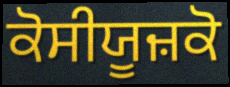
ਕੋਸੀਯੂਜ਼ਕੋ